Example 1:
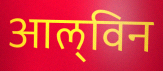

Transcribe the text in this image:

आल्विन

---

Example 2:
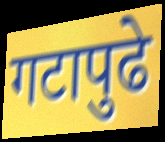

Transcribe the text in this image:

गटापुढे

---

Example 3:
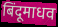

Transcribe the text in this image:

बिंदूमाधव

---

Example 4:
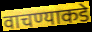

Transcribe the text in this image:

वाचण्याकडे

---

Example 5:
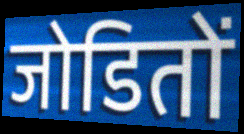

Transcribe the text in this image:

जोडितों